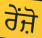
ਰੇਂਜ਼ੋ